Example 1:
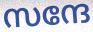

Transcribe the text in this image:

സന്ദേ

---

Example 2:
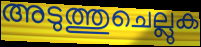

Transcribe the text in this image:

അടുത്തുചെല്ലുക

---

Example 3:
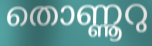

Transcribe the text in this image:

തൊണ്ണൂറു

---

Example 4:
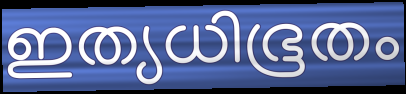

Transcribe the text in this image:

ഇത്യധിഭൂതം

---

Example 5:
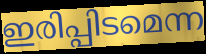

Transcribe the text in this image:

ഇരിപ്പിടമെന്ന